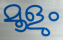
മൂളും